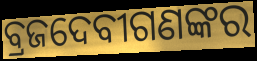
ବ୍ରଜଦେବୀଗଣଙ୍କର